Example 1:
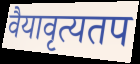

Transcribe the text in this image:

वैयावृत्यतप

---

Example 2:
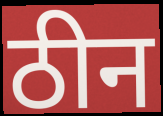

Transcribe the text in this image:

ठीन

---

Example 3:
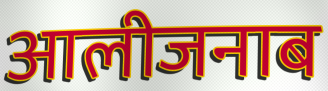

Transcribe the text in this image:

आलीजनाब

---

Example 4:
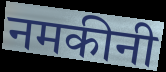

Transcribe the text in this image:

नमकीनी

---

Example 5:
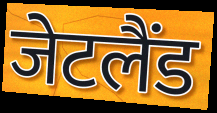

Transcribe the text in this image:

जेटलैंड